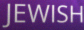
JEWISH